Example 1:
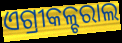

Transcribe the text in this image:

ଏଗ୍ରୀକଳ୍ଚରାଲ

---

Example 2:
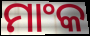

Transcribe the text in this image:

ମାଂକ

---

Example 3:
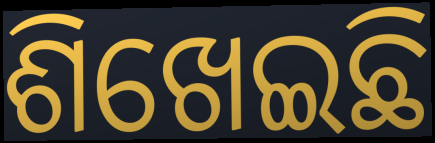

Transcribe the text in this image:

ଶିଖେଇଛି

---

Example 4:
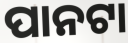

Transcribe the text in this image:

ପାନଟା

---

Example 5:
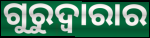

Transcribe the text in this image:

ଗୁରୁଦ୍ୱାରାର